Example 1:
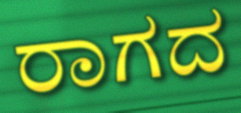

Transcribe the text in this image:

ರಾಗದ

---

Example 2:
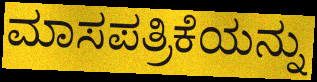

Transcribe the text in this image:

ಮಾಸಪತ್ರಿಕೆಯನ್ನು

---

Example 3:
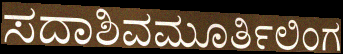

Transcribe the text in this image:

ಸದಾಶಿವಮೂರ್ತಿಲಿಂಗ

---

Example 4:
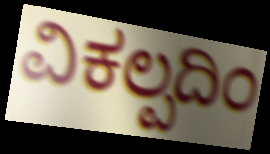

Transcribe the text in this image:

ವಿಕಲ್ಪದಿಂ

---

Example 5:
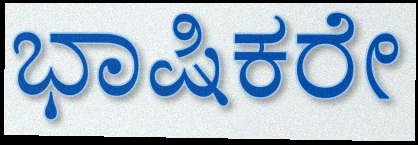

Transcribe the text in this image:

ಭಾಷಿಕರೇ